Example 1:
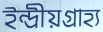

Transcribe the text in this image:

ইন্দ্রীয়গ্রাহ্য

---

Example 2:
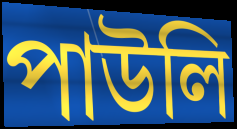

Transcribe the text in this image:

পাউলি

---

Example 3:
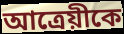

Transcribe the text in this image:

আত্রেয়ীকে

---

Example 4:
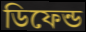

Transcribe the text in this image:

ডিফেন্ড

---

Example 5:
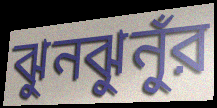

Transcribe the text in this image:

ঝুনঝুনুঁর